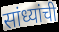
सांध्यांची